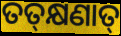
ତତ୍‍କ୍ଷଣାତ୍